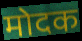
मोदक